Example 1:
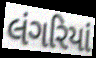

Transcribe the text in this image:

લંગરિયાં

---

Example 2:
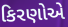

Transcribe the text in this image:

કિરણોએ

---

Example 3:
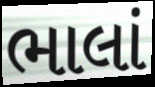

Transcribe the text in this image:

ભાલાં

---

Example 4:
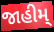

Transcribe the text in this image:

જાહીમ્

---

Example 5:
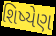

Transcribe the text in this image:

શિષ્યેણ